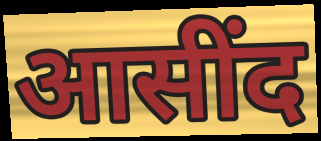
आसींद